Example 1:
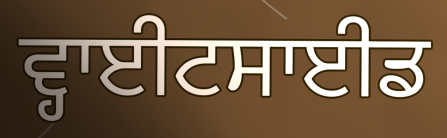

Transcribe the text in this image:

ਵ੍ਹਾਈਟਸਾਈਡ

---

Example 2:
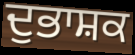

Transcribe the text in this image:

ਦੁਭਾਸ਼ਕ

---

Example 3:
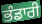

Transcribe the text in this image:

ਭੰਡਾਰੀ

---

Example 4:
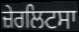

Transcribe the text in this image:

ਜ਼ੇਰਲਿਟਸਾ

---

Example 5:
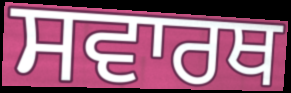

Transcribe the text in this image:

ਸਵਾਰਥ